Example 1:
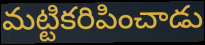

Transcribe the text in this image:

మట్టికరిపించాడు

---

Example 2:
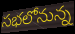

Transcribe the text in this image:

సభలోనున్న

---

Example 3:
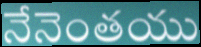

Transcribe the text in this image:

నేనెంతయు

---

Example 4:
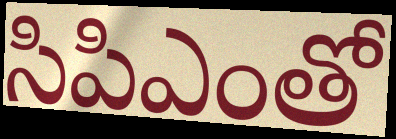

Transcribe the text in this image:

సిపిఎంతో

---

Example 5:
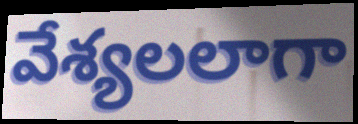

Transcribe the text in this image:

వేశ్యలలాగా